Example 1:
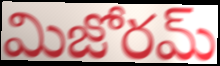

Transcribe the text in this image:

మిజోరమ్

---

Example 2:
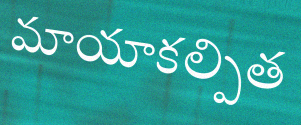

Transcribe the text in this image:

మాయాకల్పిత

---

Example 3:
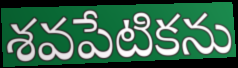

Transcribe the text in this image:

శవపేటికను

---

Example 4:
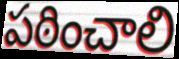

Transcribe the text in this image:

పఠించాలి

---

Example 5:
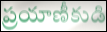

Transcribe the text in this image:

ప్రయాణీకుడి